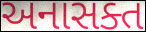
અનાસક્ત